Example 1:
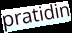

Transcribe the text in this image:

pratidin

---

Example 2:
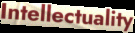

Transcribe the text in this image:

Intellectuality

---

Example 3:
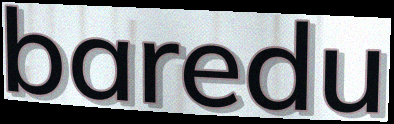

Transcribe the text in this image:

baredu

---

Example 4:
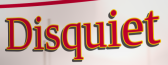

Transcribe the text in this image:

Disquiet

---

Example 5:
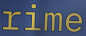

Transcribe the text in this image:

rime